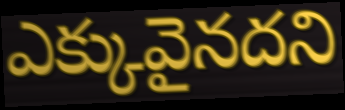
ఎక్కువైనదని